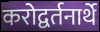
करोद्वर्तनार्थे